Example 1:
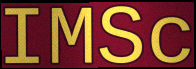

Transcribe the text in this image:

IMSc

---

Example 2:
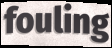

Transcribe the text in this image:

fouling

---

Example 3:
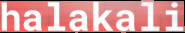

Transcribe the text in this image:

halakali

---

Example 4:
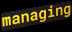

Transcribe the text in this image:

managing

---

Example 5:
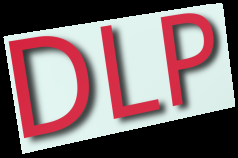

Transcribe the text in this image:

DLP